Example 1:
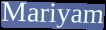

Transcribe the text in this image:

Mariyam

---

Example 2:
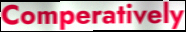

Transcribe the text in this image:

Comperatively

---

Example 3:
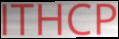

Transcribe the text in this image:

ITHCP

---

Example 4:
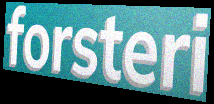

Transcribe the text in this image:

forsteri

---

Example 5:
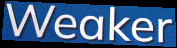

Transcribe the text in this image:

Weaker